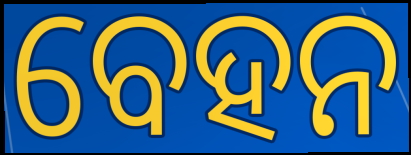
ବେହନ